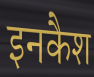
इनकैश